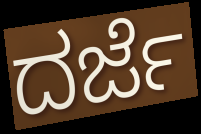
ದರ್ಜೆ